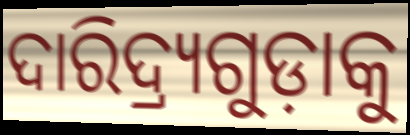
ଦାରିଦ୍ର୍ୟଗୁଡ଼ାକୁ